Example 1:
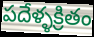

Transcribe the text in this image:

పదేళ్ళక్రితం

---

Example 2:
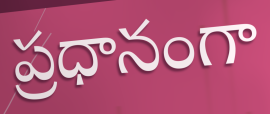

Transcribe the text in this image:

ప్రధానంగా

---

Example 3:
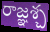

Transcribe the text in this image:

రాజ్ఞశ్చ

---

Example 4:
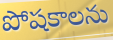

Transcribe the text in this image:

పోషకాలను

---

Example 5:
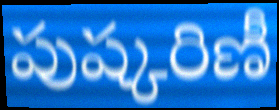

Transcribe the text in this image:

పుష్కరిణీ